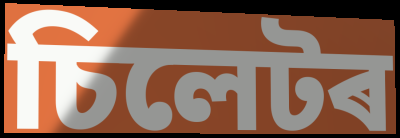
চিলেটৰ